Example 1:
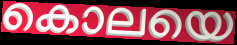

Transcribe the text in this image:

കൊലയെ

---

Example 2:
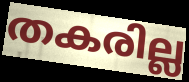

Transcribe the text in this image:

തകരില്ല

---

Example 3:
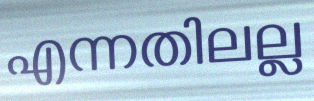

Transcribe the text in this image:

എന്നതിലല്ല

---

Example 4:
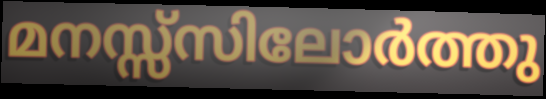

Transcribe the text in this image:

മനസ്സ്സിലോർത്തു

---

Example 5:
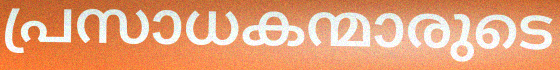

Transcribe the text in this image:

പ്രസാധകന്മാരുടെ